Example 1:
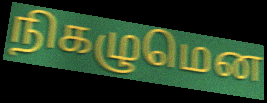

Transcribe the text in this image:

நிகழுமென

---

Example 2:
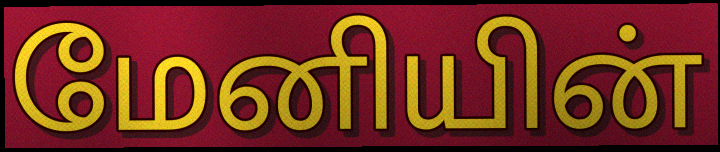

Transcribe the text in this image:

மேனியின்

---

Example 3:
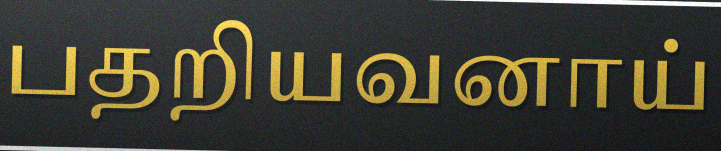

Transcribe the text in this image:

பதறியவனாய்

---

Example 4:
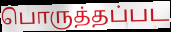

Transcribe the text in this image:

பொருத்தப்பட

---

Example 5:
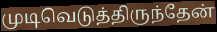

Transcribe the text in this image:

முடிவெடுத்திருந்தேன்